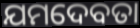
ଯମଦେବତା